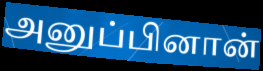
அனுப்பினான்